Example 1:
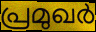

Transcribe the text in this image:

പ്രമുഖർ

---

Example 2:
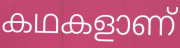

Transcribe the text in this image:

കഥകളാണ്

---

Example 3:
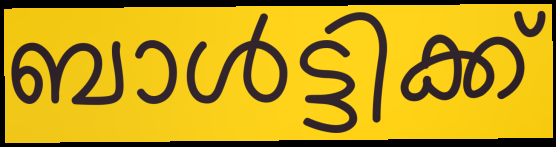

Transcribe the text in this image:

ബാൾട്ടിക്ക്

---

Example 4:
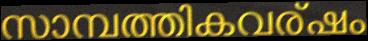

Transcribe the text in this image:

സാമ്പത്തികവര്ഷം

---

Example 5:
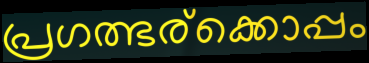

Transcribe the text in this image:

പ്രഗത്ഭര്ക്കൊപ്പം